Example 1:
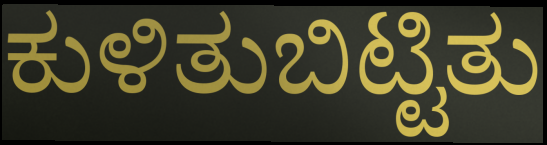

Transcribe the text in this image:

ಕುಳಿತುಬಿಟ್ಟಿತು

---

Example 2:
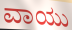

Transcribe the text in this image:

ವಾಯು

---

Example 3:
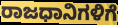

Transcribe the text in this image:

ರಾಜಧಾನಿಗಳಿಗೆ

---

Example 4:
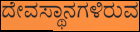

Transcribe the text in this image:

ದೇವಸ್ಥಾನಗಳಿರುವ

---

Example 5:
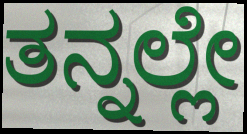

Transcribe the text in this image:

ತನ್ನಲ್ಲೇ